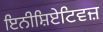
ਇਨੀਸ਼ਿਏਟਿਵਜ਼